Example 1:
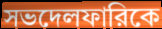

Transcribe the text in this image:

সভদেলফারিকে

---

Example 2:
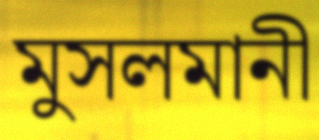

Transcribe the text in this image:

মুসলমানী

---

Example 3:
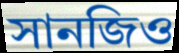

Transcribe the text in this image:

সানজিও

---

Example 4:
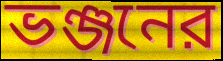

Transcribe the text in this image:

ভঞ্জনের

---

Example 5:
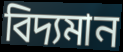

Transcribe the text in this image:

বিদ্যমান